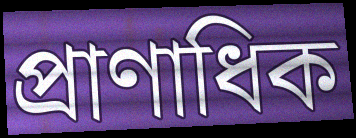
প্রাণাধিক